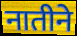
नातीने